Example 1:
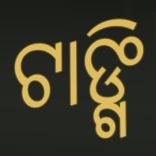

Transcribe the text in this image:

ଟାଙ୍ଗି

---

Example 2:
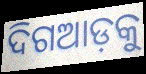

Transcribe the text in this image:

ଦିଗଆଡ଼କୁ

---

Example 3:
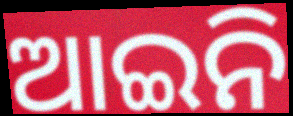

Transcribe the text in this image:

ଆଇନି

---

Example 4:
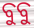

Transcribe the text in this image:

ବୁବୁ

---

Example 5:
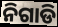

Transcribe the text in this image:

ନିଗାଡି